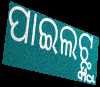
ପାଇଲଟ୍ଙ୍କୁ